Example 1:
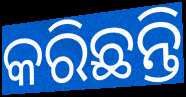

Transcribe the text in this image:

କରିଛନ୍ତି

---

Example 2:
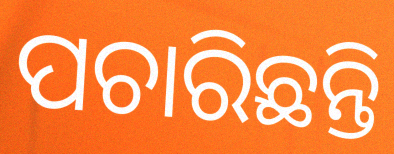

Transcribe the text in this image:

ପଚାରିଛନ୍ତି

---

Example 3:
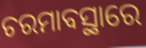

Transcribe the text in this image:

ଚରମାବସ୍ଥାରେ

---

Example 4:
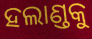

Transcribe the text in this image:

ହଲାଣ୍ଡକୁ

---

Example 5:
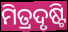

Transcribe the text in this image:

ମିତ୍ରଦୃଷ୍ଟି